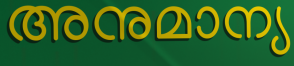
അനുമാന്യ